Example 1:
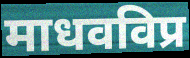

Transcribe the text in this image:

माधवविप्र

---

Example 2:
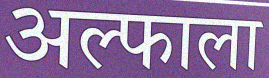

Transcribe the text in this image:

अल्फाला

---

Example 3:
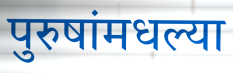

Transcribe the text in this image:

पुरुषांमधल्या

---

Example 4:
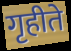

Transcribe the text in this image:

गृहीते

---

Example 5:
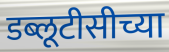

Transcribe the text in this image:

डब्लूटीसीच्या